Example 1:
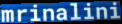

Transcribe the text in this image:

mrinalini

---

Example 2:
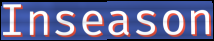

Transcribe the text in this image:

Inseason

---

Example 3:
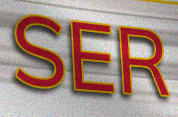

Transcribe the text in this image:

SER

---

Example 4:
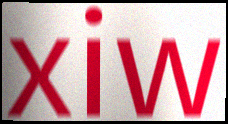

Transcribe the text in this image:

xiw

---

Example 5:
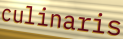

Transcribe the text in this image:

culinaris